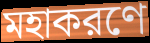
মহাকরণে